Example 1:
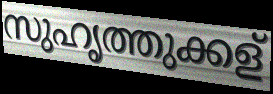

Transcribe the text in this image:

സുഹൃത്തുക്കള്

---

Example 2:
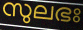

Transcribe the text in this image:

സുലഭഃ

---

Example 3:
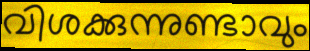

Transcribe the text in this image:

വിശക്കുന്നുണ്ടാവും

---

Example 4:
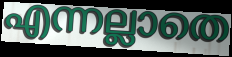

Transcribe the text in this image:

എന്നല്ലാതെ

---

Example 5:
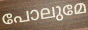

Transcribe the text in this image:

പോലുമേ